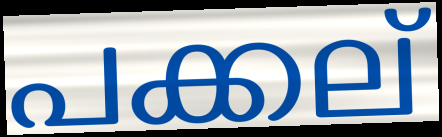
പക്കല്